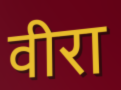
वीरा